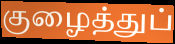
குழைத்துப்